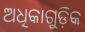
ଅଧିକାଗୁଡ଼ିକ